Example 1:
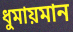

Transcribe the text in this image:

ধুমায়মান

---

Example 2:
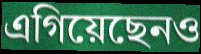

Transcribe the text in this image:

এগিয়েছেনও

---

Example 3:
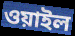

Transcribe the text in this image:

ওয়াইল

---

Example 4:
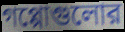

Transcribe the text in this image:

গপ্পোগুলোর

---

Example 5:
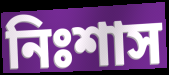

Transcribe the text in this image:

নিঃশাস